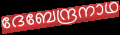
ദേബേന്ദ്രനാഥ